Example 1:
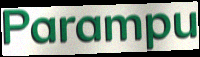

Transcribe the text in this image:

Parampu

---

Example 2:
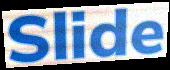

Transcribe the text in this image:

Slide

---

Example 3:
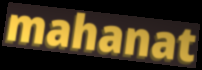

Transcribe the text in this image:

mahanat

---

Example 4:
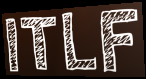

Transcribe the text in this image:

ITLF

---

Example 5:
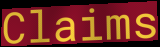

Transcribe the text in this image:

Claims